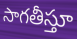
సాగతీస్తూ